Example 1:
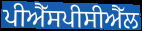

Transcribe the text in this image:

ਪੀਐੱਸਪੀਸੀਐੱਲ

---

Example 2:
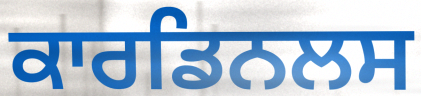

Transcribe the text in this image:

ਕਾਰਡਿਨਲਸ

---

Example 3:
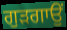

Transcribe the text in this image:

ਗੁੜਗਾਉਂ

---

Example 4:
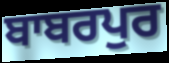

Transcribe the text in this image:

ਬਾਬਰਪੁਰ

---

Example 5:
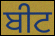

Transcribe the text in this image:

ਬੀਟ